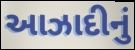
આઝાદીનું